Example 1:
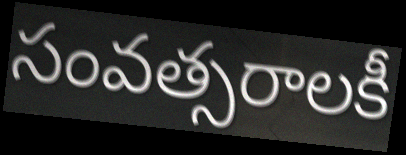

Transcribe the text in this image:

సంవత్సరాలకీ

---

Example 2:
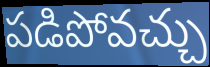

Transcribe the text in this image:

పడిపోవచ్చు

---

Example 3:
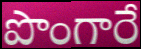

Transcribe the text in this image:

పొంగారే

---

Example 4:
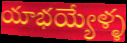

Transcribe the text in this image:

యాభయ్యేళ్ళ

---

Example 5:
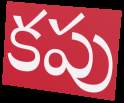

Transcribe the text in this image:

కపు